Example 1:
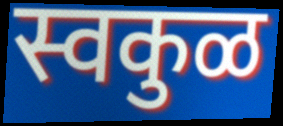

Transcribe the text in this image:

स्वकुळ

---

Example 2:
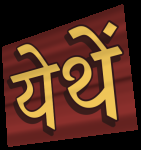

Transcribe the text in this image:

येथें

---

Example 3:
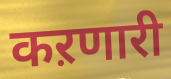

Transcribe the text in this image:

कऱणारी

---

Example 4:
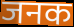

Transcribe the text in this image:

जनक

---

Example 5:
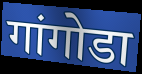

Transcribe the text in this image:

गांगोडा